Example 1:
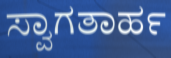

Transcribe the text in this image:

ಸ್ವಾಗತಾರ್ಹ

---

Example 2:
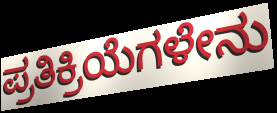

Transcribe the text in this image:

ಪ್ರತಿಕ್ರಿಯೆಗಳೇನು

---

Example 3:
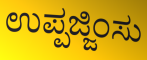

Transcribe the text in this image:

ಉಪ್ಪಜ್ಜಿಂಸು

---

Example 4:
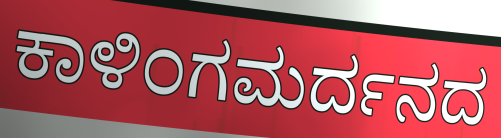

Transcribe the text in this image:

ಕಾಳಿಂಗಮರ್ದನದ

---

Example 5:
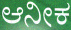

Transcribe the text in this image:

ಆನೀಕ